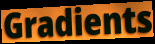
Gradients